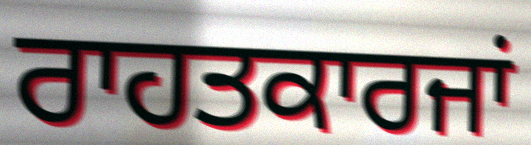
ਰਾਹਤਕਾਰਜਾਂ